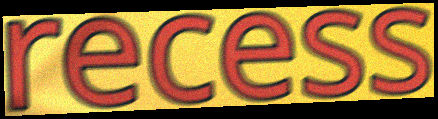
recess